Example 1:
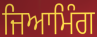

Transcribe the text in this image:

ਜਿਆਮਿੰਗ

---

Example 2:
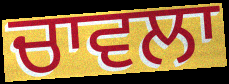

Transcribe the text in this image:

ਚਾਵਲਾ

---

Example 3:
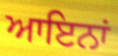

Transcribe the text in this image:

ਆਇਨਾਂ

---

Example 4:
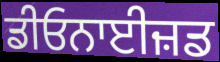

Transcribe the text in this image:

ਡੀਓਨਾਈਜ਼ਡ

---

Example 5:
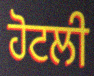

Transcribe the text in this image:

ਹੋਟਲੀ